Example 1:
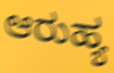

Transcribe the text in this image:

ಆರುಹ್ಯ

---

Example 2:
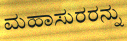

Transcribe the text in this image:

ಮಹಾಸುರರನ್ನು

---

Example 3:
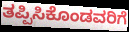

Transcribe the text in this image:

ತಪ್ಪಿಸಿಕೊಂಡವರಿಗೆ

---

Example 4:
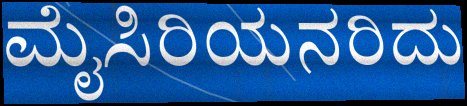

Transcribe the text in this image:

ಮೈಸಿರಿಯನರಿದು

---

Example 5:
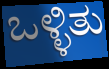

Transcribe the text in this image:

ಒಳ್ಳಿತು